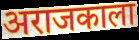
अराजकाला